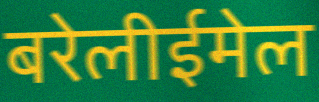
बरेलीईमेल